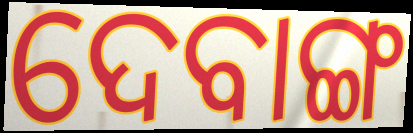
ଦେବାଙ୍ଗ